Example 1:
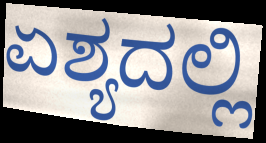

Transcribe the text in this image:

ಏಶ್ಯದಲ್ಲಿ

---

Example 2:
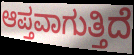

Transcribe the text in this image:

ಆಪ್ತವಾಗುತ್ತಿದೆ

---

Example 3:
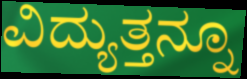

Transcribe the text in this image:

ವಿದ್ಯುತ್ತನ್ನೂ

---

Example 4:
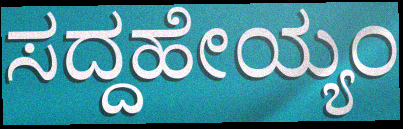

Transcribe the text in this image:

ಸದ್ದಹೇಯ್ಯಂ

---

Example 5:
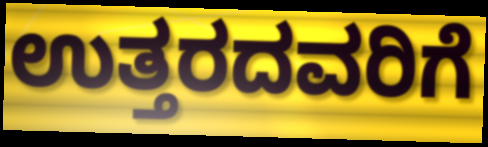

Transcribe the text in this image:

ಉತ್ತರದವರಿಗೆ